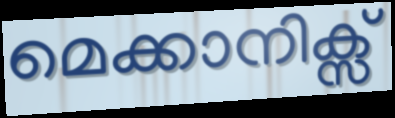
മെക്കാനിക്സ്